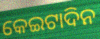
କେଇଟାଦିନ